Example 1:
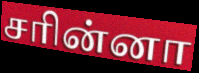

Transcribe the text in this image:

சரின்னா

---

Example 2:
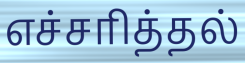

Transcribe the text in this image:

எச்சரித்தல்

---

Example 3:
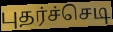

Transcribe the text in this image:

புதர்ச்செடி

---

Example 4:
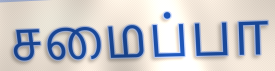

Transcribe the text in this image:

சமைப்பா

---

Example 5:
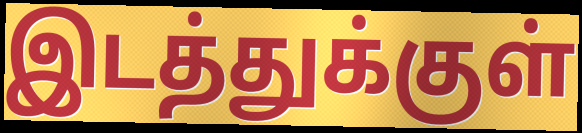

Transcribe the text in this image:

இடத்துக்குள்